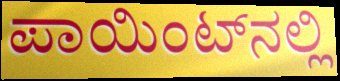
ಪಾಯಿಂಟ್‌ನಲ್ಲಿ